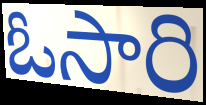
ఓసారి